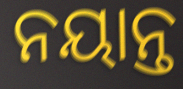
ନୟାନ୍ତ